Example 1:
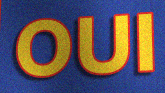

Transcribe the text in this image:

OUI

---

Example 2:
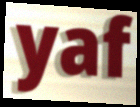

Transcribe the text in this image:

yaf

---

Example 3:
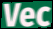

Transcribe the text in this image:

Vec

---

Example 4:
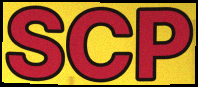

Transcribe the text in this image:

SCP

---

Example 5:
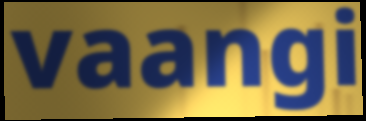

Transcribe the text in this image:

vaangi